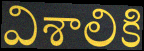
విశాలికి